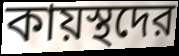
কায়স্থদের